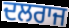
ਦਲਰਾਜ